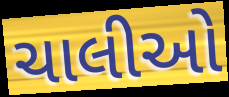
ચાલીઓ